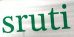
sruti